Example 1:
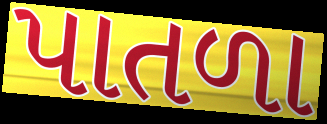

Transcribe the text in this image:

પાતળા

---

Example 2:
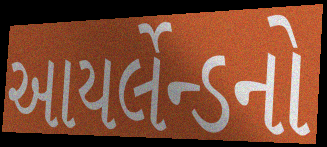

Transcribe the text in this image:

આયર્લેન્ડનો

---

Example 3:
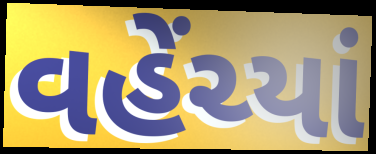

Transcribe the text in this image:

વહેંચ્યાં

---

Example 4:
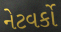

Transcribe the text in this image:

નેટવર્કો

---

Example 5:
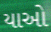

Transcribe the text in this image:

યાઓ